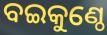
ବଇକୁଣ୍ଠେ